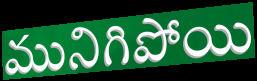
మునిగిపోయి